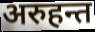
अरुहन्त